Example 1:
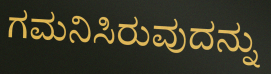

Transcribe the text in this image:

ಗಮನಿಸಿರುವುದನ್ನು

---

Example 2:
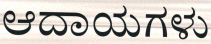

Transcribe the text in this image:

ಆದಾಯಗಳು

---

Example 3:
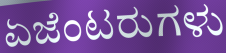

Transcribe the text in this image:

ಏಜೆಂಟರುಗಳು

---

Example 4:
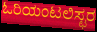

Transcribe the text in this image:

ಓರಿಯಂಟಲಿಸ್ಟರ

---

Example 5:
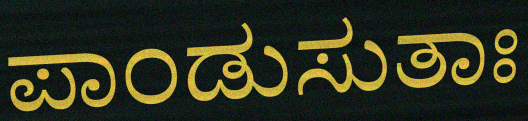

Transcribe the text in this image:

ಪಾಂಡುಸುತಾಃ